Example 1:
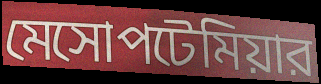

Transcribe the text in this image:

মেসোপটেমিয়ার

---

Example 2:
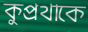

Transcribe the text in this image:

কুপ্রথাকে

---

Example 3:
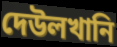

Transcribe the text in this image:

দেউলখানি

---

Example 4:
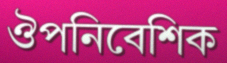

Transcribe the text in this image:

ঔপনিবেশিক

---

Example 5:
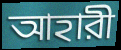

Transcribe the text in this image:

আহারী